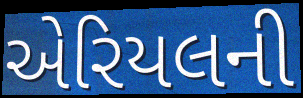
એરિયલની